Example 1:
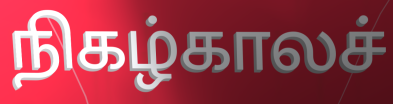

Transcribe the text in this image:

நிகழ்காலச்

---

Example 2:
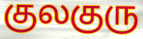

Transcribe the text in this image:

குலகுரு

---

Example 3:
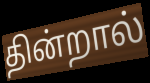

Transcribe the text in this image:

தின்றால்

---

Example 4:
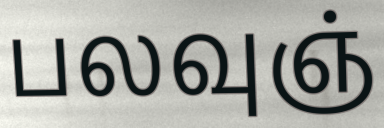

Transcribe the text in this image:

பலவுஞ்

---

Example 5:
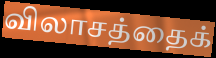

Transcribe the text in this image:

விலாசத்தைக்